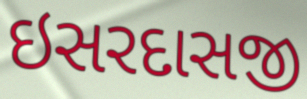
ઇસરદાસજી